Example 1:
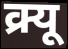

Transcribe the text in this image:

क्र्यू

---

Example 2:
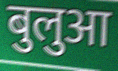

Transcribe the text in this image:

बुलुआ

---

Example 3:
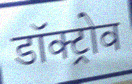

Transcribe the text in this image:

डॉक्ट्रोव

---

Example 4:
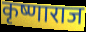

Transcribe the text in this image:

कृष्णाराज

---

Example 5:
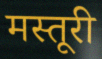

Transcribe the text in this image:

मस्तूरी